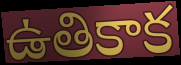
ఉతికాక